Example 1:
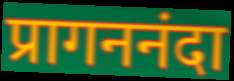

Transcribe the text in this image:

प्रागननंदा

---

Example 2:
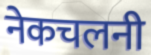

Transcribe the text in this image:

नेकचलनी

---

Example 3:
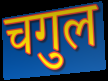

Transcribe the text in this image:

चगुल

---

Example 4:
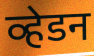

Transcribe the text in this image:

व्हेडन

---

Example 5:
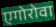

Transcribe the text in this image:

एगोरोवा